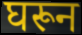
घरून